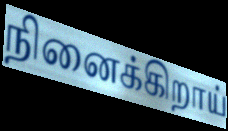
நினைக்கிறாய்